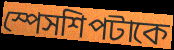
স্পেসশিপটাকে